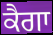
ਕੈਗਾ